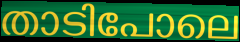
താടിപോലെ